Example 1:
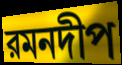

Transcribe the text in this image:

রমনদীপ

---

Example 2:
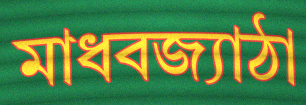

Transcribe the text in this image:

মাধবজ্যাঠা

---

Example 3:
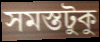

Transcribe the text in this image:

সমস্তটুকু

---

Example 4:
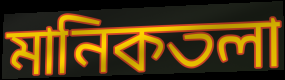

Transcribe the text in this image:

মানিকতলা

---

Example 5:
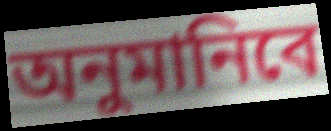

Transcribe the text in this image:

অনুমানিবে